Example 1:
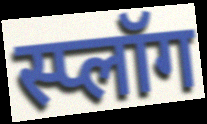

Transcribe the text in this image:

स्प्लॉग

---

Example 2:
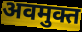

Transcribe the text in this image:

अवमुक्त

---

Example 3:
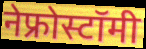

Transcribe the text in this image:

नेफ्रोस्टॉमी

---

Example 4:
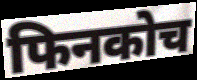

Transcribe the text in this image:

फिनकोच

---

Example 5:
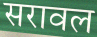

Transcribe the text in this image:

सरावल